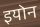
इयोन